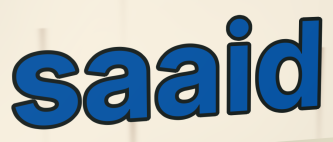
saaid